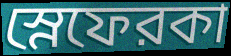
স্নেফেরকা